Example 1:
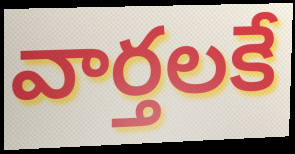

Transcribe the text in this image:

వార్తలకే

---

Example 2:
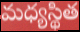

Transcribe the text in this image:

మధ్యస్థిత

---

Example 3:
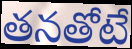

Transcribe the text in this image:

తనతోటే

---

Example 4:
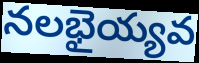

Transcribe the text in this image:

నలభైయ్యవ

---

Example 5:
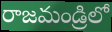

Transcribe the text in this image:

రాజమండ్రిలో